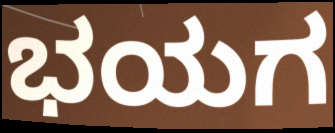
ಭಯಗ